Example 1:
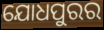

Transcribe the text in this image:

ଯୋଧପୁରର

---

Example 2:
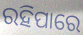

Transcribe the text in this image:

ରହିପାରେ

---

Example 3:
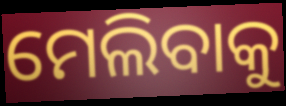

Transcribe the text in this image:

ମେଲିବାକୁ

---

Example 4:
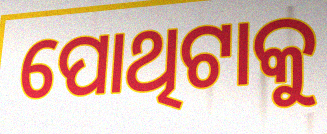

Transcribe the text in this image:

ପୋଥିଟାକୁ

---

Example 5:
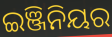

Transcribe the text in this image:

ଇଞ୍ଜିନିୟର